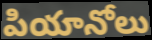
పియానోలు